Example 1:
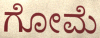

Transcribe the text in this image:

ಗೋಮೆ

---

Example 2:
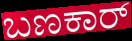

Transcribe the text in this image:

ಬಣಕಾರ್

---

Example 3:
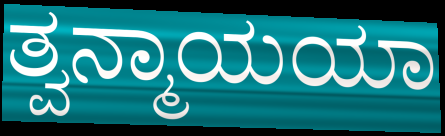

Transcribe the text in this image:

ತ್ವನ್ಮಾಯಯಾ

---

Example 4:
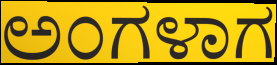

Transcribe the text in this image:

ಅಂಗಳಾಗ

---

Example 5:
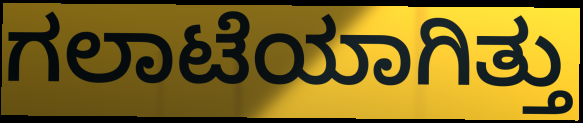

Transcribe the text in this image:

ಗಲಾಟೆಯಾಗಿತ್ತು